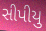
સીપીયુ